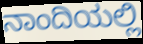
ನಾಂದಿಯಲ್ಲಿ